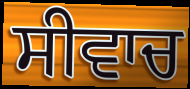
ਸੀਵਾਚ